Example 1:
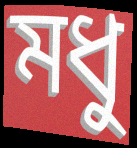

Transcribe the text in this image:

মধু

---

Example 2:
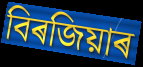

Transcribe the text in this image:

বিৰজিয়াৰ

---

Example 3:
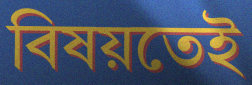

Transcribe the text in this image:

বিষয়তেই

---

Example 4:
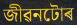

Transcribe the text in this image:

জীৱনটোৰ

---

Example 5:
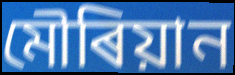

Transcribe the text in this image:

মৌৰিয়ান